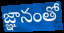
జ్ఞానంతో